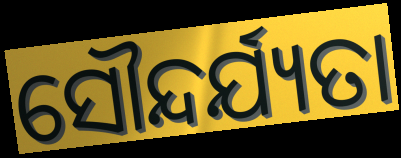
ସୌନ୍ଦର୍ଯ୍ୟତା